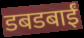
डबडबाईं